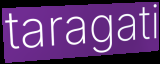
taragati